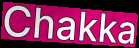
Chakka